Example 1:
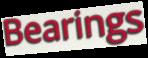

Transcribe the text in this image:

Bearings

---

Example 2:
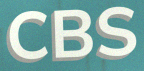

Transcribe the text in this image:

CBS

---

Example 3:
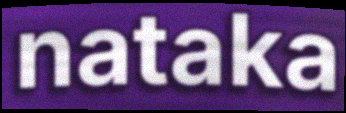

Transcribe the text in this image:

nataka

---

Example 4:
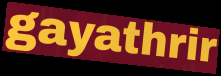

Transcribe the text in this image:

gayathrir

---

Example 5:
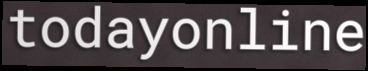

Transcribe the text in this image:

todayonline